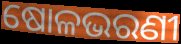
ଷୋଳଭରଣୀ